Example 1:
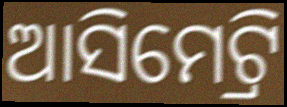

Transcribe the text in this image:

ଆସିମେଟ୍ରି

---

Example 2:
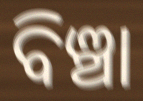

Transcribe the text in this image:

ବିଞ୍ଚା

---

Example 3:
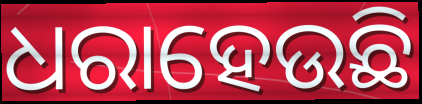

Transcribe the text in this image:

ଧରାହେଉଛି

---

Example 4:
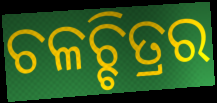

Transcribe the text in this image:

ଚଳଚ୍ଚିତ୍ରର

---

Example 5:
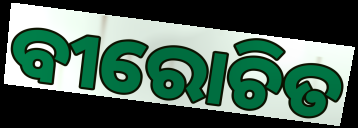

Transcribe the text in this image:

ବୀରୋଚିତ